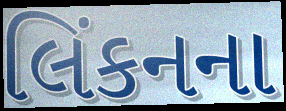
લિંકનના